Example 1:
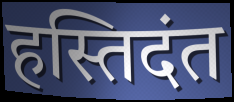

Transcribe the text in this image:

हस्तिदंत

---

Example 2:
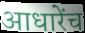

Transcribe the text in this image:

आधारेंच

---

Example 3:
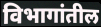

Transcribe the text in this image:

विभागांतील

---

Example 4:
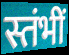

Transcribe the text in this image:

स्तंभीं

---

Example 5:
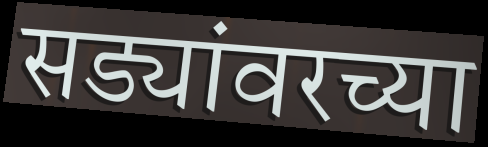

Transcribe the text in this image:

सड्यांवरच्या